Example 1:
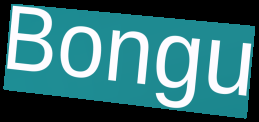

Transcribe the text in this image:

Bongu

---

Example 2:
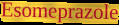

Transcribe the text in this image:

Esomeprazole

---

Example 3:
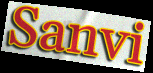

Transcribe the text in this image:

Sanvi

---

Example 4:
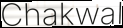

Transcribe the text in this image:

Chakwal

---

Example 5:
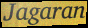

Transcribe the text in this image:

Jagaran